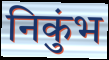
निकुंभ